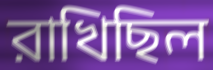
রাখিছিল